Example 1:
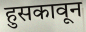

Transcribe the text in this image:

हुसकावून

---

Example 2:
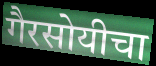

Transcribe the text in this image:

गैरसोयीचा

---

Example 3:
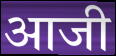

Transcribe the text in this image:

आजी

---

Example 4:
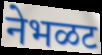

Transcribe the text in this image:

नेभळट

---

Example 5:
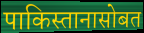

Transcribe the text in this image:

पाकिस्तानासोबत